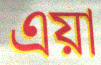
এয়া